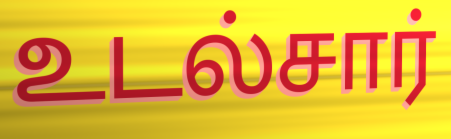
உடல்சார்